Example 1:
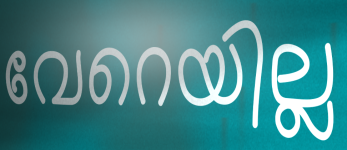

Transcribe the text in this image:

വേറെയില്ല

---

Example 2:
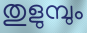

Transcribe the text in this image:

തുളുമ്പും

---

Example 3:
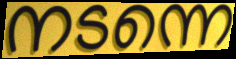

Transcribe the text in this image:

നടന്നെ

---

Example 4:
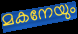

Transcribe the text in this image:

മകനേയും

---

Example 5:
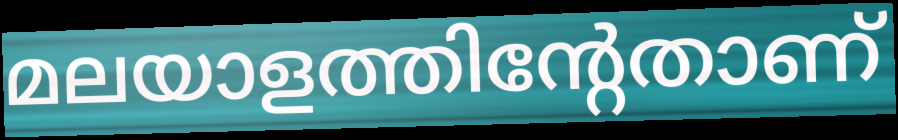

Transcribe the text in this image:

മലയാളത്തിന്റേതാണ്